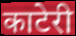
काटेरी